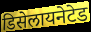
डिसेलायनेटेड